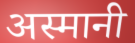
अस्मानी